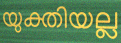
യുക്തിയല്ല